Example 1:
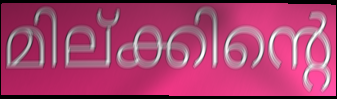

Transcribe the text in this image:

മില്ക്കിന്റെ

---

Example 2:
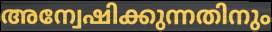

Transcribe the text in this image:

അന്വേഷിക്കുന്നതിനും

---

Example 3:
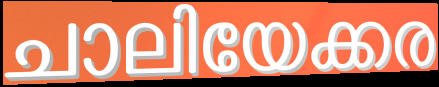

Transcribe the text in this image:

ചാലിയേക്കര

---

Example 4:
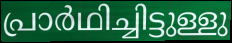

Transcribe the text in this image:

പ്രാർഥിച്ചിട്ടുള്ളു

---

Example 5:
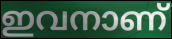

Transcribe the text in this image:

ഇവനാണ്